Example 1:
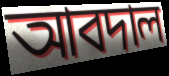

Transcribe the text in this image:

আবদাল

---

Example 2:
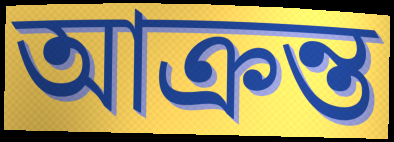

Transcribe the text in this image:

আক্রন্ত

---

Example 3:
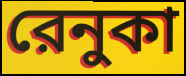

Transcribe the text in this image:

রেনুকা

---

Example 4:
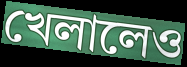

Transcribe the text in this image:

খেলালেও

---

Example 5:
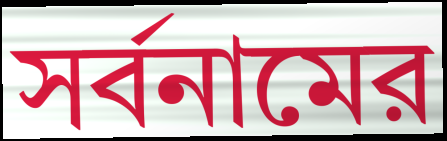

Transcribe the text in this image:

সর্বনামের